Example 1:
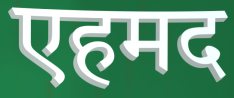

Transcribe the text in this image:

एहमद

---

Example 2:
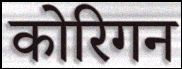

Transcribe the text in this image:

कोरिगन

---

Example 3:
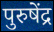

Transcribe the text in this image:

पुरुषेंद्र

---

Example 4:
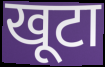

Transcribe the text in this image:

खूटा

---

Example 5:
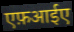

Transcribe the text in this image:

एफ़आईए